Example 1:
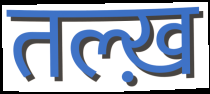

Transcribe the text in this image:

तल्ख़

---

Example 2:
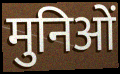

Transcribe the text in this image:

मुनिओं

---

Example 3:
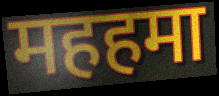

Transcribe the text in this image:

महहमा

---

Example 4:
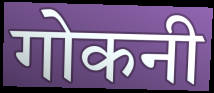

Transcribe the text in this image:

गोकनी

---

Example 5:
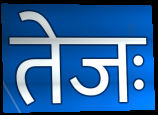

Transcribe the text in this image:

तेजः